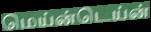
மெய்ன்டெய்ன்